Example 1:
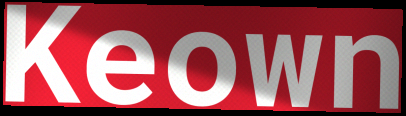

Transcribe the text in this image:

Keown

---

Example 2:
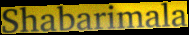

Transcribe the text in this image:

Shabarimala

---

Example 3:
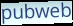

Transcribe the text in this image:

pubweb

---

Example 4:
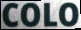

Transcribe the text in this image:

COLO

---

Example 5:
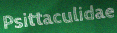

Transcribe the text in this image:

Psittaculidae